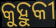
କୁହୁକୀ